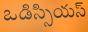
ఒడిస్సియస్